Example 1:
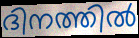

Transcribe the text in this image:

ദിനത്തിൽ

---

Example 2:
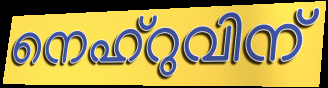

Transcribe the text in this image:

നെഹ്റുവിന്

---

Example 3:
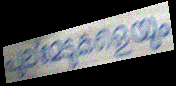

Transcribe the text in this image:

പുല്മേടുകളെയും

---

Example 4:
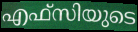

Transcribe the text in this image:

എഫ്സിയുടെ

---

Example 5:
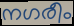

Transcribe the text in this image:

നഗരീം